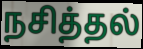
நசித்தல்